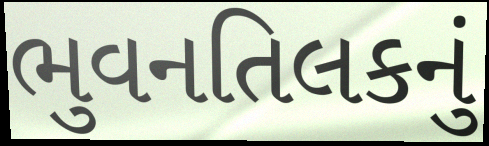
ભુવનતિલકનું